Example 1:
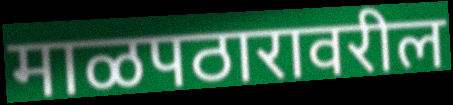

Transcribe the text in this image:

माळपठारावरील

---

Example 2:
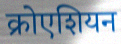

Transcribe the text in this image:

क्रोएशियन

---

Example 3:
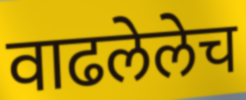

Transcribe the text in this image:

वाढलेलेच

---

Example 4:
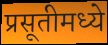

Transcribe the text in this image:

प्रसूतीमध्ये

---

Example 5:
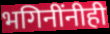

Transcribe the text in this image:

भगिनींनीही